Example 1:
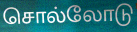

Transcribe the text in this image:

சொல்லோடு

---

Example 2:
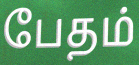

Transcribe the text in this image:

பேதம்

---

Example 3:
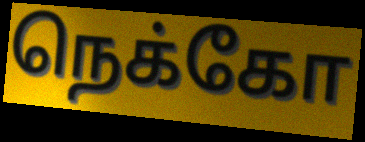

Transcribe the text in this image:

நெக்கோ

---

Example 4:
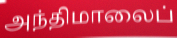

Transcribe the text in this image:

அந்திமாலைப்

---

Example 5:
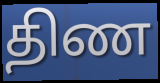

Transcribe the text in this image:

திண